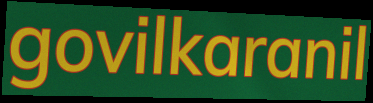
govilkaranil